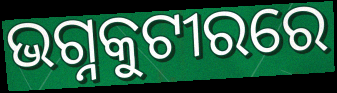
ଭଗ୍ନକୁଟୀରରେ